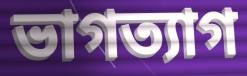
ভাগত্যাগ